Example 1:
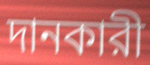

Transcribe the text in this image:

দানকারী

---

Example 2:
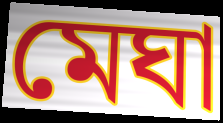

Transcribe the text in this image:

মেঘা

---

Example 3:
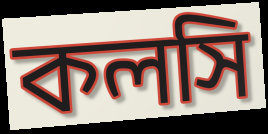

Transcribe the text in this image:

কলসি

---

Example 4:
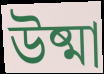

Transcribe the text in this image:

উষ্মা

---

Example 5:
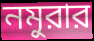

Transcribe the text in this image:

নমুরার